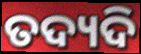
ତଦ୍ୟଦି